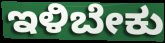
ಇಳಿಬೇಕು